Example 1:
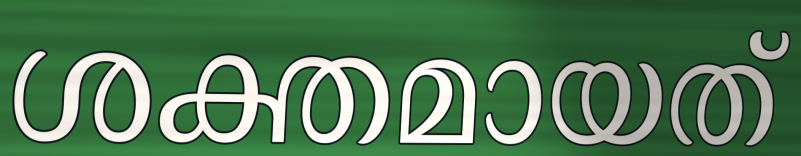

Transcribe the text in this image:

ശക്തമായത്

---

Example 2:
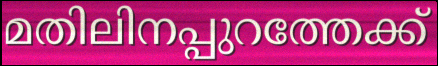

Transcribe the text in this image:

മതിലിനപ്പുറത്തേക്ക്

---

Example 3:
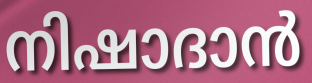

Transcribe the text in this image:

നിഷാദാൻ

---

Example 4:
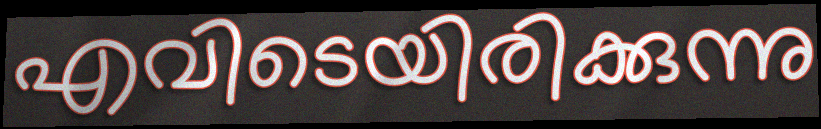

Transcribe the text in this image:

എവിടെയിരിക്കുന്നു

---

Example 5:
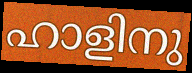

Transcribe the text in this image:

ഹാളിനു